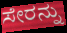
ಸೇರನ್ನು